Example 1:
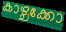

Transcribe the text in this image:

കാഴ്ചക്കോ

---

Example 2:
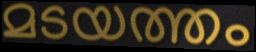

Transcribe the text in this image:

മടയത്തം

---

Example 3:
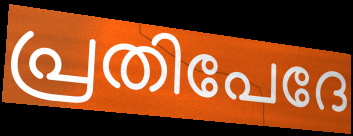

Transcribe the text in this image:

പ്രതിപേദേ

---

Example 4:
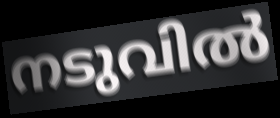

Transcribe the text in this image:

നടുവിൽ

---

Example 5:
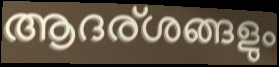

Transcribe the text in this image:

ആദര്ശങ്ങളും